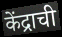
केंद्राची